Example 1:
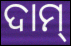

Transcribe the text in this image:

ଦାମ୍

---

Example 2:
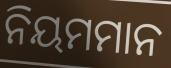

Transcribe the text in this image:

ନିୟମମାନ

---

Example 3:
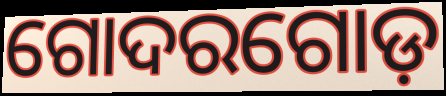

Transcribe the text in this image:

ଗୋଦରଗୋଡ଼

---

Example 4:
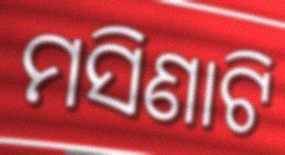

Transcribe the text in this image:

ମସିଣାଟି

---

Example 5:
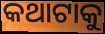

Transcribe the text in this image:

କଥାଟାକୁ